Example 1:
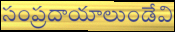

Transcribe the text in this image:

సంప్రదాయాలుండేవి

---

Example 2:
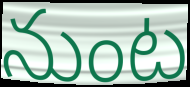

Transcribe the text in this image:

నుంట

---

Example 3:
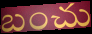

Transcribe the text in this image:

బంచు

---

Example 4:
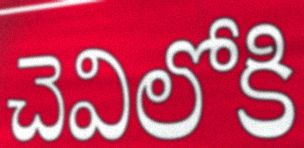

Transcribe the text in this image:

చెవిలోకి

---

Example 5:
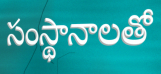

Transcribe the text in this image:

సంస్థానాలతో